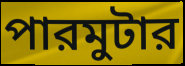
পারমুটার